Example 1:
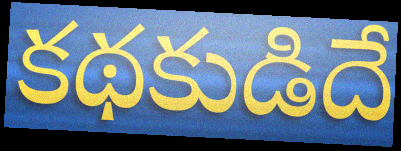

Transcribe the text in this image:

కథకుడిదే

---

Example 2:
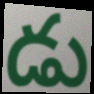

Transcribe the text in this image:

డు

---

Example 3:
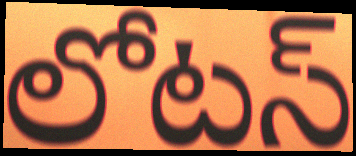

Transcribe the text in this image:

లోటస్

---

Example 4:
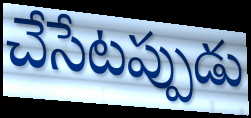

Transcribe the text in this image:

చేసేటప్పుడు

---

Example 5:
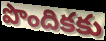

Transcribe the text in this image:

పొందికకు